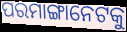
ପରମାଙ୍ଗାନେଟକୁ